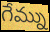
గేమ్ను